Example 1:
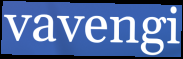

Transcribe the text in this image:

vavengi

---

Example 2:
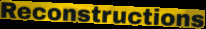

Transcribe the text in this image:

Reconstructions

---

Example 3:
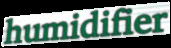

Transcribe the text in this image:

humidifier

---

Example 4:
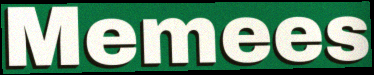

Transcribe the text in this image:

Memees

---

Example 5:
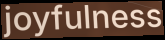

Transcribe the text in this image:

joyfulness